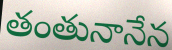
తంతునానేన